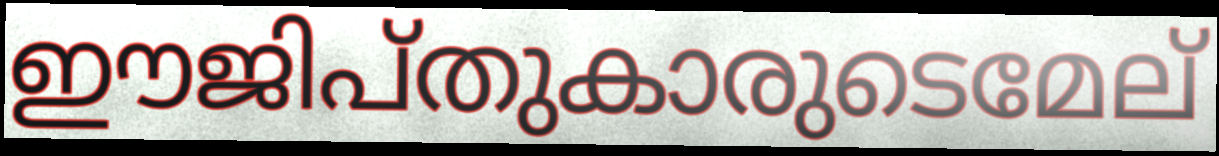
ഈജിപ്തുകാരുടെമേല്